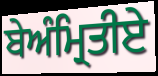
ਬੇਅੰਮ੍ਰਿਤੀਏ